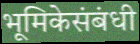
भूमिकेसंबंधी